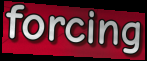
forcing